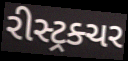
રીસ્ટ્રક્ચર